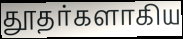
தூதர்களாகிய